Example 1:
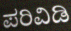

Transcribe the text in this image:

ಪರಿವಿಡಿ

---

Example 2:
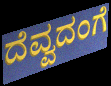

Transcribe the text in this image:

ದೆವ್ವದಂಗೆ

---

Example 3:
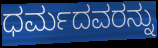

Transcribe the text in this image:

ಧರ್ಮದವರನ್ನು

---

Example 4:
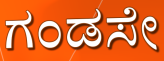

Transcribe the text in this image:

ಗಂಡಸೇ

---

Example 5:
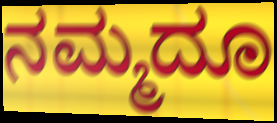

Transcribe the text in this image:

ನಮ್ಮದೂ